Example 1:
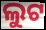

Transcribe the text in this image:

ଲୁଟ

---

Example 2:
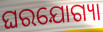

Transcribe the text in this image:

ଘରଯୋଗ୍ୟା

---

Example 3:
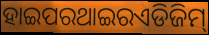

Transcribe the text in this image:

ହାଇପରଥାଇରଏଡିଜିମ୍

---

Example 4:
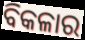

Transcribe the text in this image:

ବିକଳାର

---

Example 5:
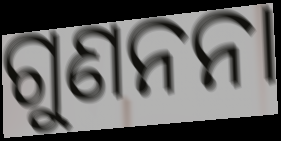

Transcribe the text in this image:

ଗୁଣନନା